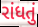
રાંધતું